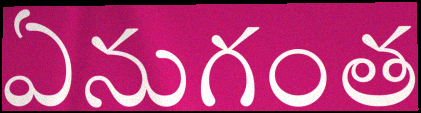
ఏనుగంత